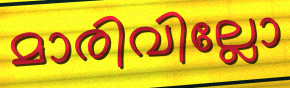
മാരിവില്ലോ